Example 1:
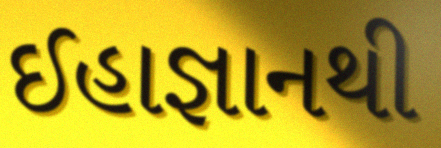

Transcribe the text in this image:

ઈહાજ્ઞાનથી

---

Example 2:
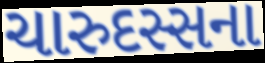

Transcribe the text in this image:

ચારુદસ્સના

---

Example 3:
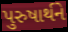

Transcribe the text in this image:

પુરુષાર્થને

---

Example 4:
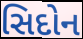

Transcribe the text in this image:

સિદોન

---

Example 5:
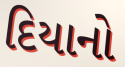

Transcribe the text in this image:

દિયાનો